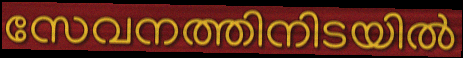
സേവനത്തിനിടയിൽ